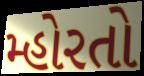
મ્હોરતો